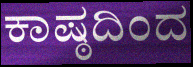
ಕಾಷ್ಠದಿಂದ